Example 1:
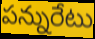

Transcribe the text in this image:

పన్నురేటు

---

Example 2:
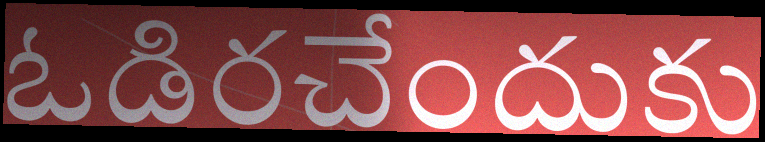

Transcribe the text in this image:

ఓడిరచేందుకు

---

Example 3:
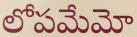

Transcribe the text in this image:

లోపమేమో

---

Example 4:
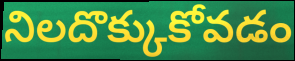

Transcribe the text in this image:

నిలదొక్కుకోవడం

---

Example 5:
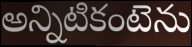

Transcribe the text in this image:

అన్నిటికంటెను